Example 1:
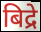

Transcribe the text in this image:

बिद्रे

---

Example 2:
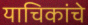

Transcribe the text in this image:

याचिकांचे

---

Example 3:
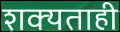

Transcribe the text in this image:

शक्‍यताही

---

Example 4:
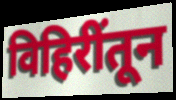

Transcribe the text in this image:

विहिरींतून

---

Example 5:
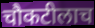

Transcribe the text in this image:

चौकटीलाच